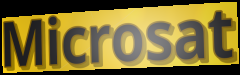
Microsat